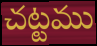
చట్టము